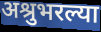
अश्रुभरल्या